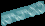
నావారని